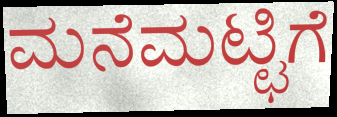
ಮನೆಮಟ್ಟಿಗೆ